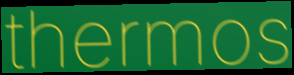
thermos